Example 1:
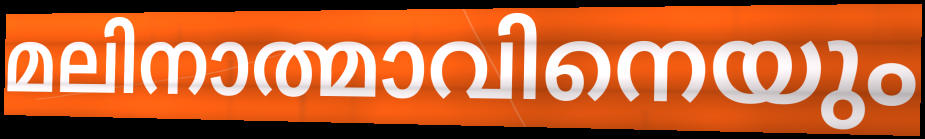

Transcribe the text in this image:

മലിനാത്മാവിനെയും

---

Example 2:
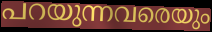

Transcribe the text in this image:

പറയുന്നവരെയും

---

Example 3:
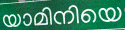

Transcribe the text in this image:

യാമിനിയെ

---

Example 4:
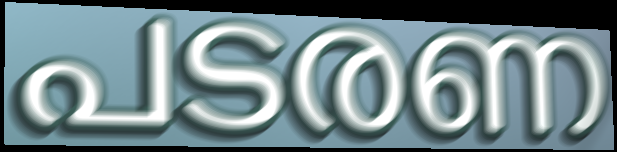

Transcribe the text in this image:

പടരണ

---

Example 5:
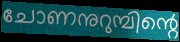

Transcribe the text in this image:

ചോണനുറുമ്പിന്റെ